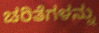
ಚರಿತೆಗಳನ್ನು